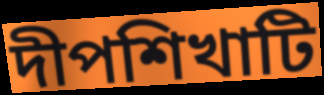
দীপশিখাটি